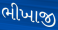
ભીખાજી